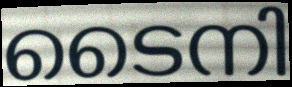
ടൈനി